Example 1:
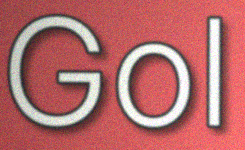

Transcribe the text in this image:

Gol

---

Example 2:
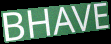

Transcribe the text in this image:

BHAVE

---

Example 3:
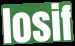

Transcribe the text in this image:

Iosif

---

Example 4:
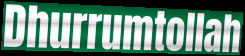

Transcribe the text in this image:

Dhurrumtollah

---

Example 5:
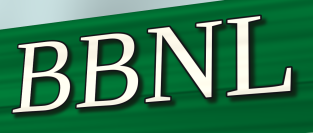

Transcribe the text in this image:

BBNL